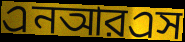
এনআরএস